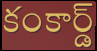
కంకార్డ్